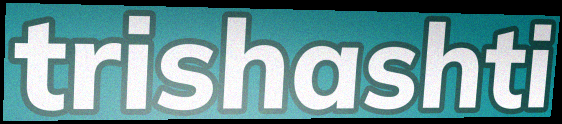
trishashti